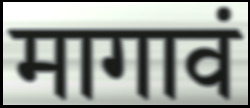
मागावं